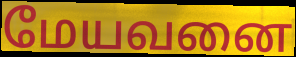
மேயவனை